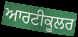
ਆਰਟੀਕੂਲਰ